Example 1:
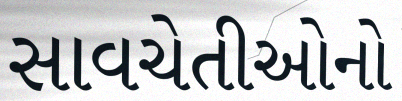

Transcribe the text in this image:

સાવચેતીઓનો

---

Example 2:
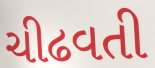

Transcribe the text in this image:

ચીઢવતી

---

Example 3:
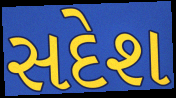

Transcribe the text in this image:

સદેશ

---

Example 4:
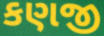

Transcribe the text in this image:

કણજી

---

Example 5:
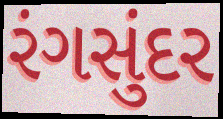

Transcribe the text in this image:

રંગસુંદર